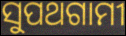
ସୁପଥଗାମୀ